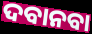
ଦବାନବା